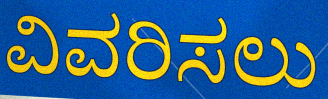
ವಿವರಿಸಲು